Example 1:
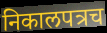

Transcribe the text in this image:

निकालपत्रच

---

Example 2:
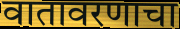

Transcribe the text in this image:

वातावरणाचा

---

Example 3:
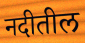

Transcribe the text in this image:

नदीतील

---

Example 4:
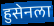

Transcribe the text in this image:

हुसेनला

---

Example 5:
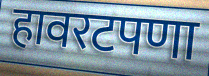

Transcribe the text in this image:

हावरटपणा